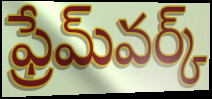
ఫ్రేమ్‌వర్క్